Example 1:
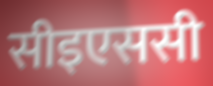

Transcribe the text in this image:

सीइएससी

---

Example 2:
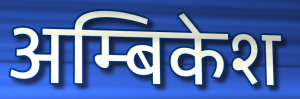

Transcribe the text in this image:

अम्बिकेश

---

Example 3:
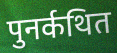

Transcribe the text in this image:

पुनर्कथित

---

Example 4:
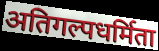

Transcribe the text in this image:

अतिगल्पधर्मिता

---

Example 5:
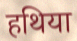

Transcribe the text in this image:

हथिया